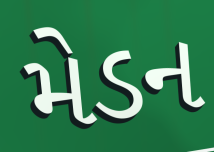
મેડન